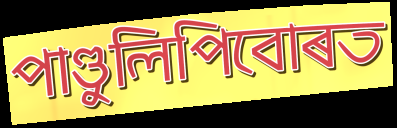
পাণ্ডুলিপিবোৰত